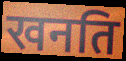
खनति